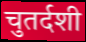
चुतर्दशी